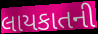
લાયકાતની